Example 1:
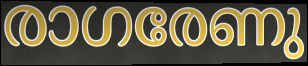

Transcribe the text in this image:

രാഗരേണു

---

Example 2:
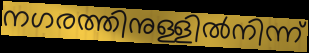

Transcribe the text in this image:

നഗരത്തിനുള്ളിൽനിന്ന്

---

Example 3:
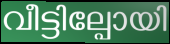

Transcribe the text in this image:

വീട്ടില്പോയി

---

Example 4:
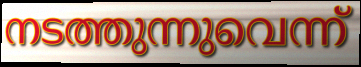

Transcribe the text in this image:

നടത്തുന്നുവെന്ന്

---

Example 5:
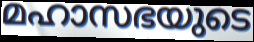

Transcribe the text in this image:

മഹാസഭയുടെ